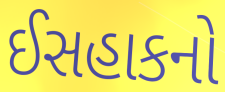
ઈસહાકનો